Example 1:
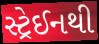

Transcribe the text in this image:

સ્ટ્રેઈનથી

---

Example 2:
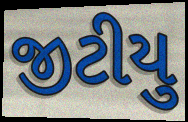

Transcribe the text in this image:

જીટીયુ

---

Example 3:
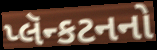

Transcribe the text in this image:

પ્લૅન્કટનનો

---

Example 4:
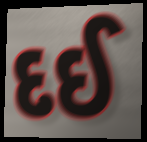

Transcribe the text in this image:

દઈ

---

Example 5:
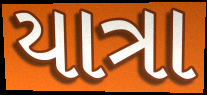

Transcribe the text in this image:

યાત્રા